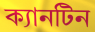
ক্যানটিন